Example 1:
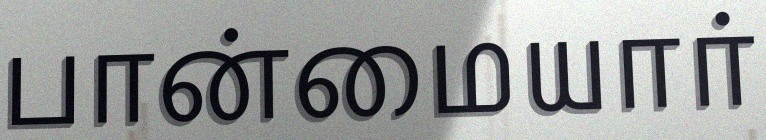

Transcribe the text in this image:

பான்மையார்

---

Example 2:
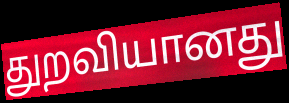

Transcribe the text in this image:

துறவியானது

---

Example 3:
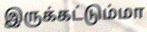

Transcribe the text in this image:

இருக்கட்டும்மா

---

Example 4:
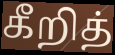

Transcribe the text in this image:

கீறித்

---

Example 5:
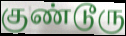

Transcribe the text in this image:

குண்டூரு